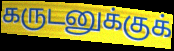
கருடனுக்குக்